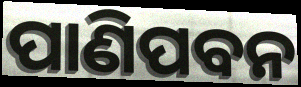
ପାଣିପବନ